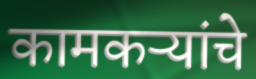
कामकऱ्यांचे